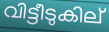
വിട്ടീടുകില്